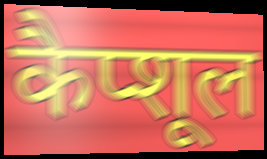
कैप्शूल